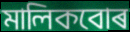
মালিকবোৰ